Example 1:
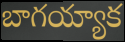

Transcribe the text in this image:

బాగయ్యాక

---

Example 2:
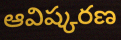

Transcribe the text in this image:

ఆవిష్కరణ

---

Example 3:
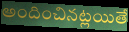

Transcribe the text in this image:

అందించినట్లయితే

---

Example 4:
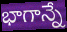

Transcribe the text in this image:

భాగాన్నే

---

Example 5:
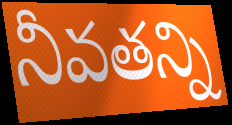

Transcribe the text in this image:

నీవతన్ని